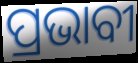
ପ୍ରଭାବୀ